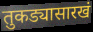
तुकड्यासारखं